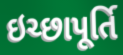
ઇચ્છાપૂર્તિ